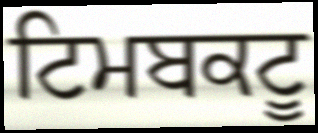
ਟਿਮਬਕਟੂ